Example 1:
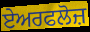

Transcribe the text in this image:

ਏਅਰਫਲੋਜ਼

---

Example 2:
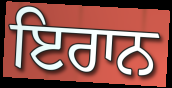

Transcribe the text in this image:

ਇਰਾਨ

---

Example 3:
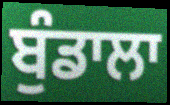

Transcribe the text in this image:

ਬੁੰਡਾਲਾ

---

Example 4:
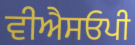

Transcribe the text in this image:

ਵੀਐਸਓਪੀ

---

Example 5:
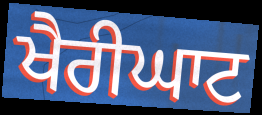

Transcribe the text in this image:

ਖੈਰੀਘਾਟ